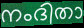
നംദിതാ